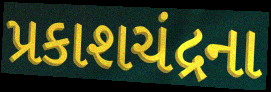
પ્રકાશચંદ્રના